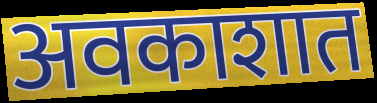
अवकाशात